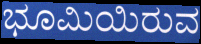
ಭೂಮಿಯಿರುವ